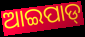
ଆଇପାଡ୍